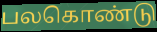
பலகொண்டு